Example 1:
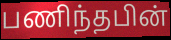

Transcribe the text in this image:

பணிந்தபின்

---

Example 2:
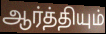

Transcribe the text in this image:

ஆர்த்தியும்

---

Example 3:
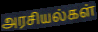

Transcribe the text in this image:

அரசியல்கள்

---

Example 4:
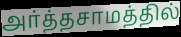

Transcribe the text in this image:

அர்த்தசாமத்தில்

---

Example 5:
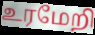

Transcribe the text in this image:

உரமேறி